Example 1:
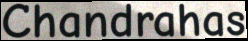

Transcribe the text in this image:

Chandrahas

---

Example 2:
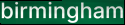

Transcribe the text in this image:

birmingham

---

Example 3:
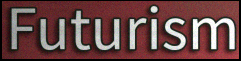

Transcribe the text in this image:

Futurism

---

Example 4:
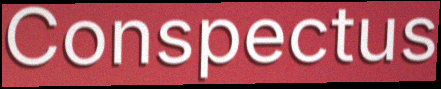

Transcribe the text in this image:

Conspectus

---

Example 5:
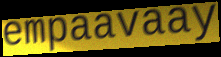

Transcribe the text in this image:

empaavaay